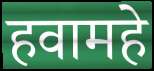
हवामहे